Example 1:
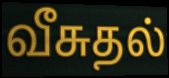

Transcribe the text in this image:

வீசுதல்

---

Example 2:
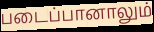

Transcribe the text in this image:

படைப்பானாலும்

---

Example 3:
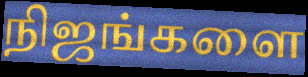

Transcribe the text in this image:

நிஜங்களை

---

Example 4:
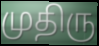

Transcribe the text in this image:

முதிரு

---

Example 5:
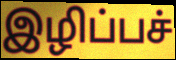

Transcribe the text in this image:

இழிப்பச்